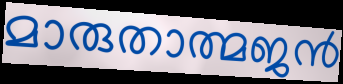
മാരുതാത്മജൻ